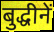
बुद्धीनें